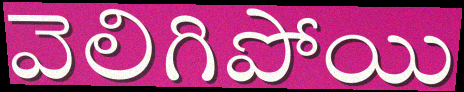
వెలిగిపోయి